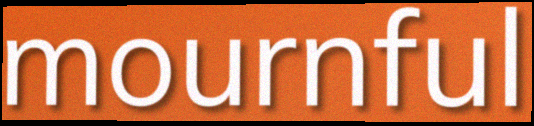
mournful